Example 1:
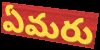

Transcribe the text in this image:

ఏమరు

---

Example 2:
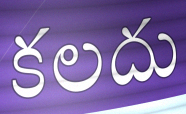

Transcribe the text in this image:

కలదు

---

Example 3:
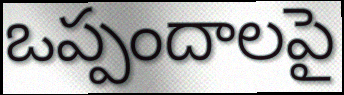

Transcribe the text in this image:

ఒప్పందాలపై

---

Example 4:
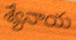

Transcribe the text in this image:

శ్యేనాయ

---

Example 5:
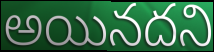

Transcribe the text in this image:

అయినదని